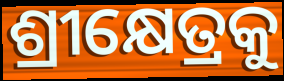
ଶ୍ରୀକ୍ଷେତ୍ରକୁ